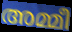
അമ്മീ